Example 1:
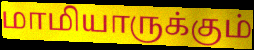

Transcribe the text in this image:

மாமியாருக்கும்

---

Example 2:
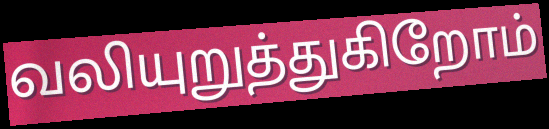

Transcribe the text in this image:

வலியுறுத்துகிறோம்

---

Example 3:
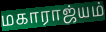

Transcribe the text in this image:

மகாராஜ்யம்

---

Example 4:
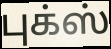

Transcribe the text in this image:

புக்ஸ்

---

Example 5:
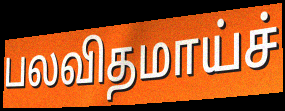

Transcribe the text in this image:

பலவிதமாய்ச்